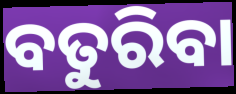
ବତୁରିବା